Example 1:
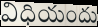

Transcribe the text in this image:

విధియందు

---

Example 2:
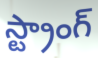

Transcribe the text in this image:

స్ట్రాంగ్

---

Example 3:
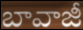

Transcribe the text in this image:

బావాజీ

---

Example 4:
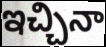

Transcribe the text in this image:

ఇచ్చినా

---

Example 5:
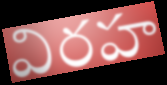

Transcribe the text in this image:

విరహ